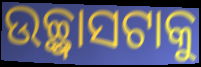
ଉଚ୍ଛ୍ୱାସଟାକୁ